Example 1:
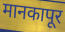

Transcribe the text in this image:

मानकापूर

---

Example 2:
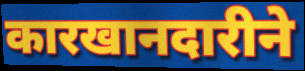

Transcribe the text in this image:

कारखानदारीने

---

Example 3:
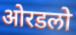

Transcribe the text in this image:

ओरडलो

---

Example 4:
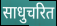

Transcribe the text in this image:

साधुचरित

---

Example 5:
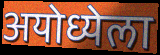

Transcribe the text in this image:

अयोध्येला